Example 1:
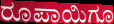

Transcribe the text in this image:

ರೂಪಾಯಿಗೂ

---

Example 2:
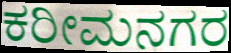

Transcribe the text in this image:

ಕರೀಮನಗರ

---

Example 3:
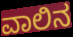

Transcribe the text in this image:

ವಾಲಿನ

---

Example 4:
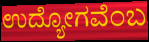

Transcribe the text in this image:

ಉದ್ಯೋಗವೆಂಬ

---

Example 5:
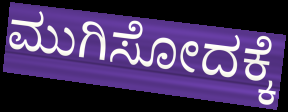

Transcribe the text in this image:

ಮುಗಿಸೋದಕ್ಕೆ